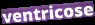
ventricose